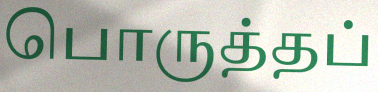
பொருத்தப்